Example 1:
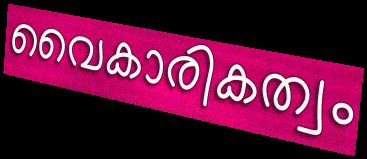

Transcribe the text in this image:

വൈകാരികത്വം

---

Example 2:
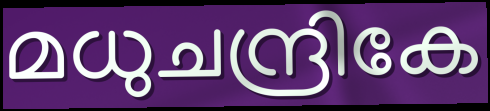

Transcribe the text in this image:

മധുചന്ദ്രികേ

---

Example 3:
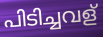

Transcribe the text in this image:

പിടിച്ചവള്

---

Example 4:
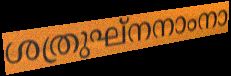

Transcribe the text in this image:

ശത്രുഘ്നനാംനാ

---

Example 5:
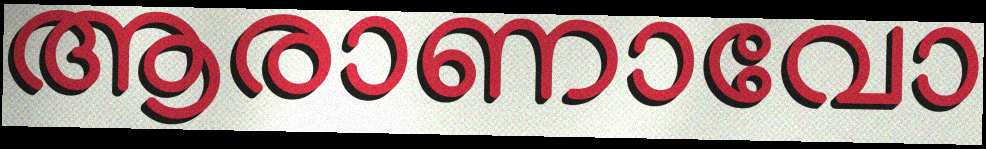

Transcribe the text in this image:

ആരാണാവോ